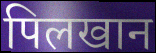
पिलखान